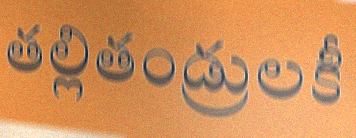
తల్లితండ్రులకీ